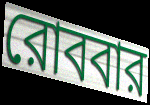
রোববার